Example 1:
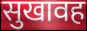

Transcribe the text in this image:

सुखावह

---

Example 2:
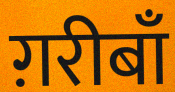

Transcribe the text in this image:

ग़रीबाँ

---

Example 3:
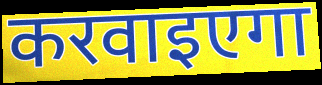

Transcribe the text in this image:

करवाइएगा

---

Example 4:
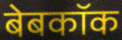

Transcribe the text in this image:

बेबकॉक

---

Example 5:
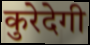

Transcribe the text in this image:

कुरेदेगी